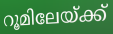
റൂമിലേയ്ക്ക്